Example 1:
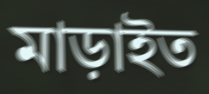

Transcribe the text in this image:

মাড়াইত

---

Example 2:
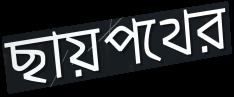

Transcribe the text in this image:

ছায়পথের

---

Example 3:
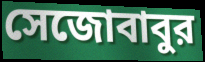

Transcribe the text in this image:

সেজোবাবুর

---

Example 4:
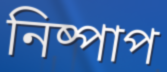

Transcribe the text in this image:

নিষ্পাপ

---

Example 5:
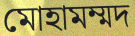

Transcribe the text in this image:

মোহামম্মদ